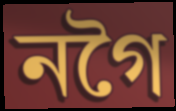
নগৈ